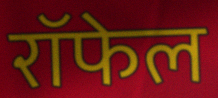
रॉफेल